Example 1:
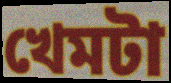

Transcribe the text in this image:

খেমটা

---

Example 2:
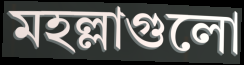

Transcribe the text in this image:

মহল্লাগুলো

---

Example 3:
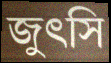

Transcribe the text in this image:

জুৎসি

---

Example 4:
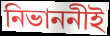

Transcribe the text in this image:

নিভাননীই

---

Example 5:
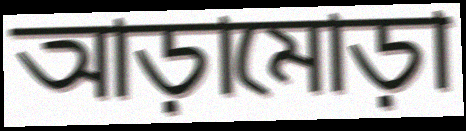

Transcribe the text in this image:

আড়ামোড়া